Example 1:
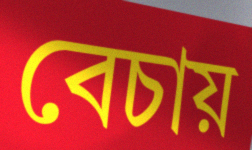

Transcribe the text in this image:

বেচায়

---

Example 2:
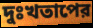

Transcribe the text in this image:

দুঃখতাপের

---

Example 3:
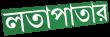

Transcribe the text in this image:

লতাপাতার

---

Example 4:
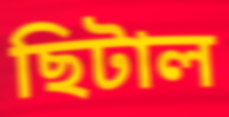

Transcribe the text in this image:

ছিটাল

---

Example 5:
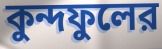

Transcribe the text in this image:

কুন্দফুলের